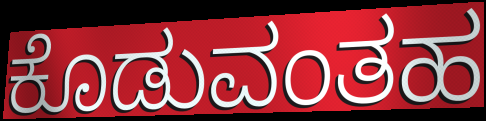
ಕೊಡುವಂತಹ